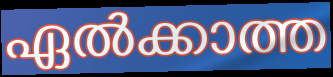
ഏൽക്കാത്ത